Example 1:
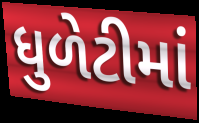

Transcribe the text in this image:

ધુળેટીમાં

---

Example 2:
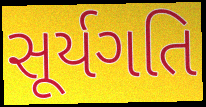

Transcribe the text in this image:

સૂર્યગતિ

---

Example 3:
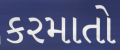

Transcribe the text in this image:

કરમાતો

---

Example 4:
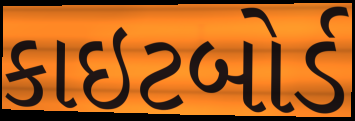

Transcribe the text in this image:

કાઇટબોર્ડ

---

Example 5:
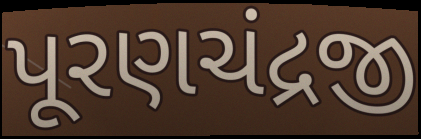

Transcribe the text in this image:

પૂરણચંદ્રજી